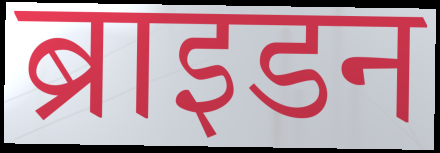
ब्राइडन